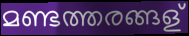
മണ്ടത്തരങ്ങള്